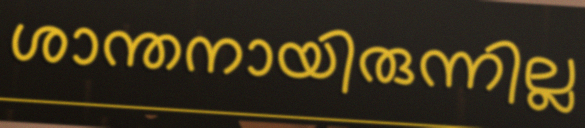
ശാന്തനായിരുന്നില്ല